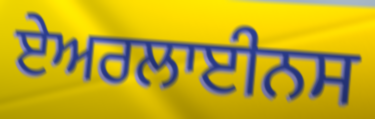
ਏਅਰਲਾਈਨਸ